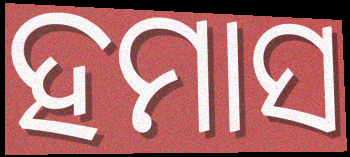
ହମାସ